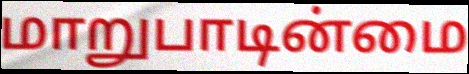
மாறுபாடின்மை